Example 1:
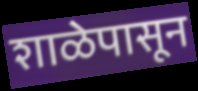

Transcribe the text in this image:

शाळेपासून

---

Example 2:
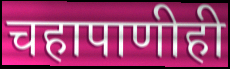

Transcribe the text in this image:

चहापाणीही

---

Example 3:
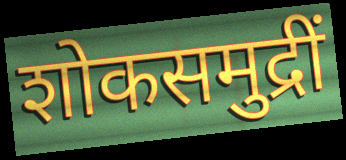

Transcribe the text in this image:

शोकसमुद्रीं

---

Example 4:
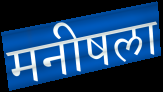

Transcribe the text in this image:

मनीषला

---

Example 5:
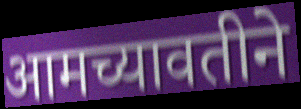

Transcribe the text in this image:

आमच्यावतीने